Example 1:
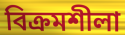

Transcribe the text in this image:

বিক্রমশীলা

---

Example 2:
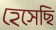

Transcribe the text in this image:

হেসেছি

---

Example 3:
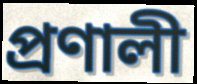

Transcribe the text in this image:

প্রণালী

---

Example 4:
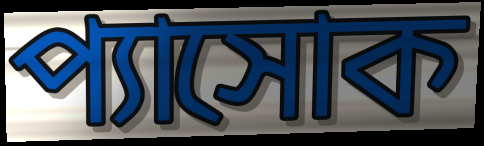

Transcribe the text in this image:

প্যাসোক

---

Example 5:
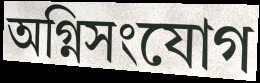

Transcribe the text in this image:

অগ্নিসংযোগ